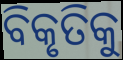
ବିକୃତିକୁ